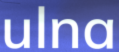
ulna